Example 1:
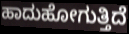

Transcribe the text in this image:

ಹಾದುಹೋಗುತ್ತಿದೆ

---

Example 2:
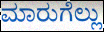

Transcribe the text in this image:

ಮಾರುಗೆಲ್ಲು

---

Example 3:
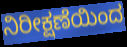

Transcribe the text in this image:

ನಿರೀಕ್ಷಣೆಯಿಂದ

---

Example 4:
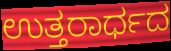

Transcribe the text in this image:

ಉತ್ತರಾರ್ಧದ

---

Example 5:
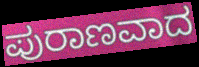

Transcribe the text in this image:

ಪುರಾಣವಾದ